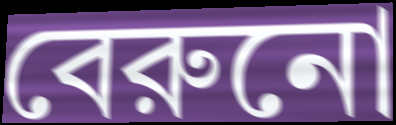
বেরুনো